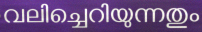
വലിച്ചെറിയുന്നതും